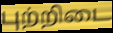
புற்றிடை